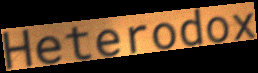
Heterodox